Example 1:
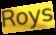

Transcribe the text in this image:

Roys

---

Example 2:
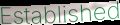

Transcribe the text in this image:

Established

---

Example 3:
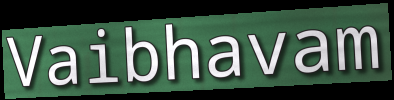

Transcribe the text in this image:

Vaibhavam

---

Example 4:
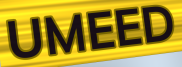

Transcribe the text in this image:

UMEED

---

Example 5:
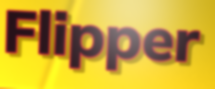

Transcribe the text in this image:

Flipper